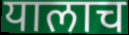
यालाच